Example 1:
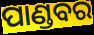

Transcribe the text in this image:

ପାଣ୍ଡବର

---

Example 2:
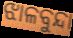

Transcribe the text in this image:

ଝାଳବୁନ୍ଦା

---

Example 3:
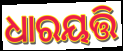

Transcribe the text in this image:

ଧାରୟତ୍ତି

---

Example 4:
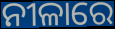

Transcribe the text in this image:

ନୀଳାରେ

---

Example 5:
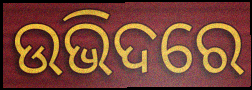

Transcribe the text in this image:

ଉଭିଦରେ